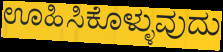
ಊಹಿಸಿಕೊಳ್ಳುವುದು